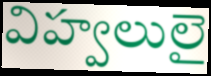
విహ్వలులై